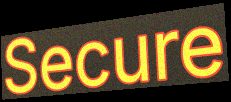
Secure